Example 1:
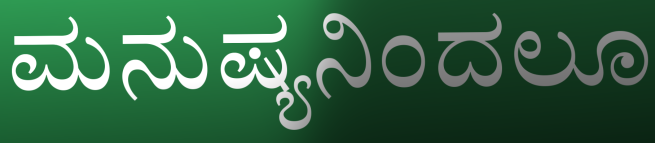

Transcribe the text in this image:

ಮನುಷ್ಯನಿಂದಲೂ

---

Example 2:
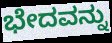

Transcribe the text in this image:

ಭೇದವನ್ನು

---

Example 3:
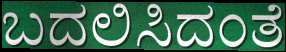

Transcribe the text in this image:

ಬದಲಿಸಿದಂತೆ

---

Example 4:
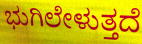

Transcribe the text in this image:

ಭುಗಿಲೇಳುತ್ತದೆ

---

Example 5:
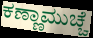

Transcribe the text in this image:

ಕಣ್ಣಾಮುಚ್ಚೆ